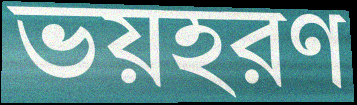
ভয়হরণ